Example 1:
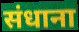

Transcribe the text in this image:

संधाना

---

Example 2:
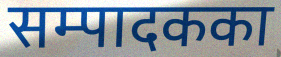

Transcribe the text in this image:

सम्पादकका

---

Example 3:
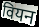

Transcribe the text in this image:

वियन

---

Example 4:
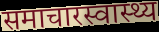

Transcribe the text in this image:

समाचारस्वास्थ्य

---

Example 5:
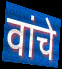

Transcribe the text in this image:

वांचे